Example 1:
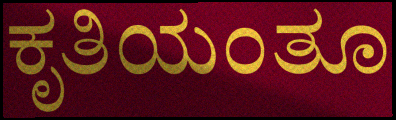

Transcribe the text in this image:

ಕೃತಿಯಂತೂ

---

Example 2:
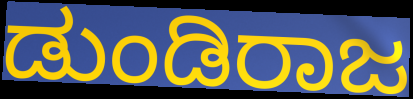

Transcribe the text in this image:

ಡುಂಡಿರಾಜ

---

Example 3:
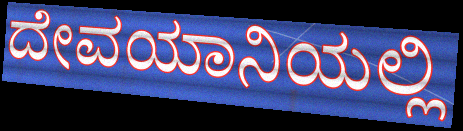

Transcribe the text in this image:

ದೇವಯಾನಿಯಲ್ಲಿ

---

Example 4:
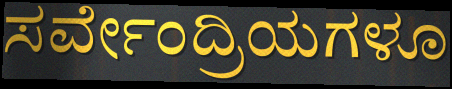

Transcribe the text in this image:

ಸರ್ವೇಂದ್ರಿಯಗಳೂ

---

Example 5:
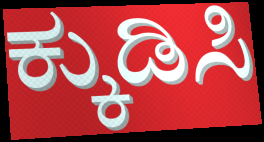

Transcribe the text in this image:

ಕ್ಕುಡಿಸಿ